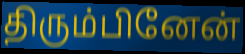
திரும்பினேன்